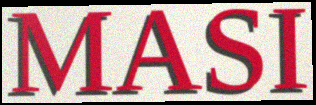
MASI